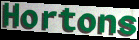
Hortons